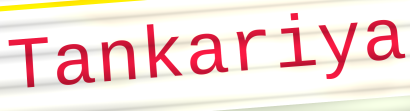
Tankariya